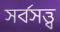
সর্বসত্ত্ব